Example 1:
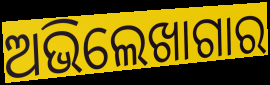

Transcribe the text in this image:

ଅଭିଲେଖାଗାର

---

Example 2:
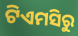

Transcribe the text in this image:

ଟିଏମସିରୁ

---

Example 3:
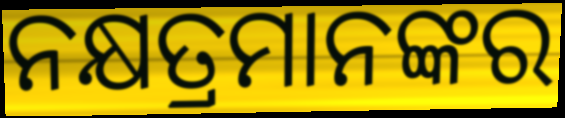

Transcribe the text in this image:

ନକ୍ଷତ୍ରମାନଙ୍କର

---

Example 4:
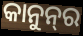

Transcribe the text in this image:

କାନୁନ୍‌ର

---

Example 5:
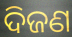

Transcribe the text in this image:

ଦିଜଣ